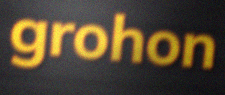
grohon